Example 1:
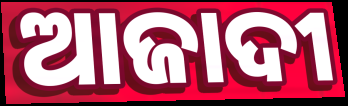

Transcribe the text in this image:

ଆଜାଦୀ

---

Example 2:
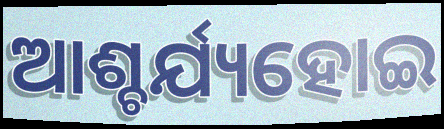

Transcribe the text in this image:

ଆଶ୍ଚର୍ଯ୍ୟହୋଇ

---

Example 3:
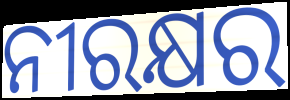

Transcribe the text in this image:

ନୀରକ୍ଷର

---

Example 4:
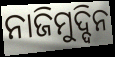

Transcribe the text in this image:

ନାଜିମୁଦ୍ଦିନ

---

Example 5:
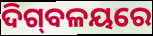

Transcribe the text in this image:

ଦିଗ୍‌ବଳୟରେ